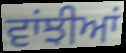
ਵਾਂਝੀਆਂ